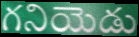
గనియెడు